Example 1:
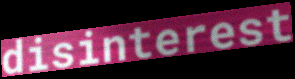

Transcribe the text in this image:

disinterest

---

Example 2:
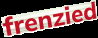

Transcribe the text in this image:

frenzied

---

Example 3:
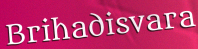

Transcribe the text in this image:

Brihadisvara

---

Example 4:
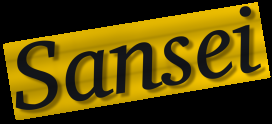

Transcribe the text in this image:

Sansei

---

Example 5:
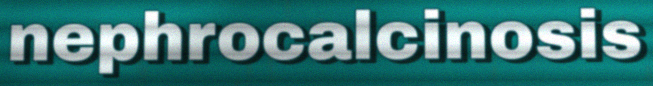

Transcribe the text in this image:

nephrocalcinosis